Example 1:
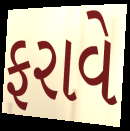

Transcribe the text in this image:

ફરાવે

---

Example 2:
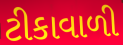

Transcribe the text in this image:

ટીકાવાળી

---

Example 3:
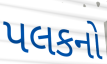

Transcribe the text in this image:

પલકનો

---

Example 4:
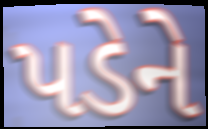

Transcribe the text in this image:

પડેને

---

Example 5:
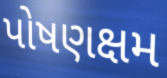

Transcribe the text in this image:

પોષણક્ષમ